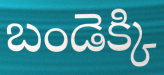
బండెక్కి